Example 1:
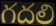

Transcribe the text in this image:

గదలి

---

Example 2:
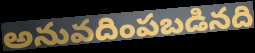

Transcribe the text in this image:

అనువదింపబడినది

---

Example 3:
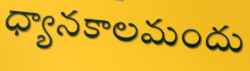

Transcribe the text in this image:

ధ్యానకాలమందు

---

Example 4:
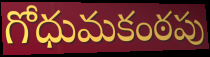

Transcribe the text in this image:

గోధుమకంఠపు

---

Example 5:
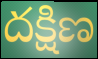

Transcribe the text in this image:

దక్షిణ